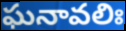
ఘనావలిః